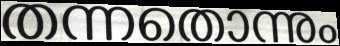
തന്നതൊന്നും